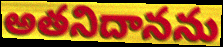
అతనిదానను